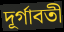
দূর্গাবতী